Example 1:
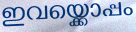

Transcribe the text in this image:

ഇവയ്ക്കൊപ്പം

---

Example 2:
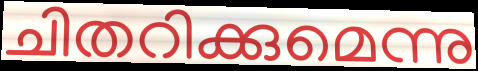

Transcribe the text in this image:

ചിതറിക്കുമെന്നു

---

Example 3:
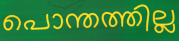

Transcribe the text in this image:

പൊന്തത്തില്ല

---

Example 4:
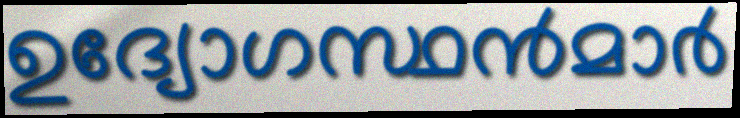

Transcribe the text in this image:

ഉദ്യോഗസ്ഥൻമാർ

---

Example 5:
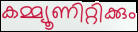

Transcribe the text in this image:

കമ്മ്യൂണിറ്റിക്കും